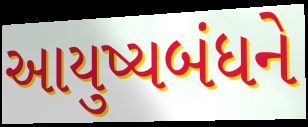
આયુષ્યબંધને